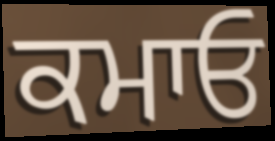
ਕਮਾਓ